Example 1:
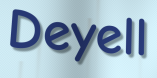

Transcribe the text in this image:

Deyell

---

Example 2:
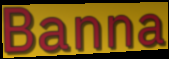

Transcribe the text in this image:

Banna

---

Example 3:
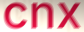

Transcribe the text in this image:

cnx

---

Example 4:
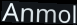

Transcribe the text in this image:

Anmol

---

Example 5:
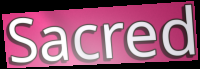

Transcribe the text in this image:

Sacred